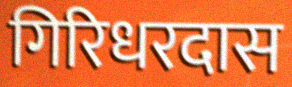
गिरिधरदास